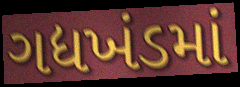
ગદ્યખંડમાં